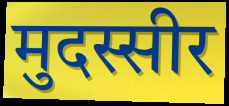
मुदस्सीर